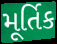
મૂર્તિક